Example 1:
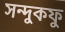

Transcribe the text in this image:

সন্দুকফু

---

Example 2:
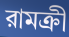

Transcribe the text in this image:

রামক্রী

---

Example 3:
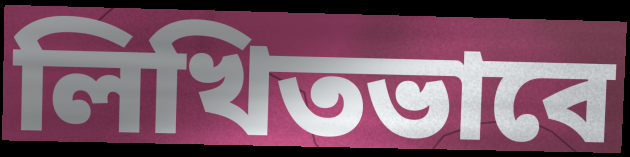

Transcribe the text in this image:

লিখিতভাবে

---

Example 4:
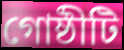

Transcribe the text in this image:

গোষ্ঠীটি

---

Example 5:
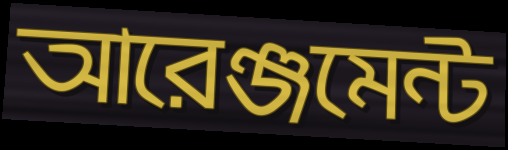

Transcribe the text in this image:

আরেঞ্জমেন্ট